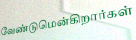
வேண்டுமென்கிறார்கள்